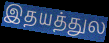
இதயத்துல